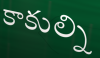
కాకుల్ని